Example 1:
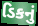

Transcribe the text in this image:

ડિકનું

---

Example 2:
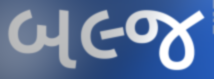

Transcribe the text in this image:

બલ્જ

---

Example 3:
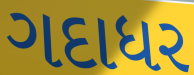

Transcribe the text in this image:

ગદાધર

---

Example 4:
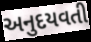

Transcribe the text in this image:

અનુદયવતી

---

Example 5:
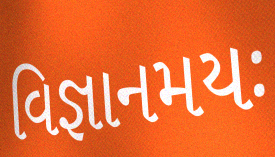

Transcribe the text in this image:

વિજ્ઞાનમયઃ